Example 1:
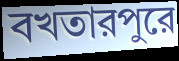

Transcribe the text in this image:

বখতারপুরে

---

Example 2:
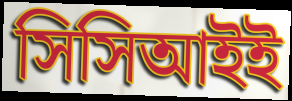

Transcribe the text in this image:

সিসিআইই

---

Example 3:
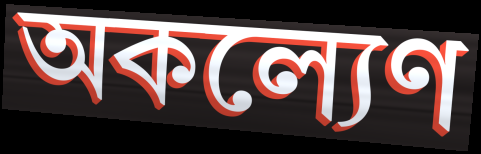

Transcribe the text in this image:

অকল্যেণ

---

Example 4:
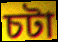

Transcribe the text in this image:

চটা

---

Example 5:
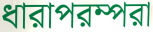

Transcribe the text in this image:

ধারাপরম্পরা